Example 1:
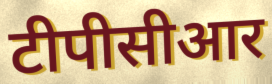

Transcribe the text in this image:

टीपीसीआर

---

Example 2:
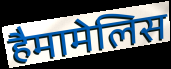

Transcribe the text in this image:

हैमामेलिस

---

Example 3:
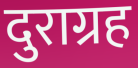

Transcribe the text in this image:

दुराग्रह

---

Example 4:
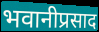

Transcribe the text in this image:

भवानीप्रसाद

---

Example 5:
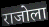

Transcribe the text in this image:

राजोला